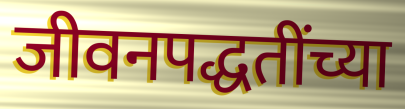
जीवनपद्धतींच्या